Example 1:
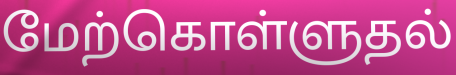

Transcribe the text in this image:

மேற்கொள்ளுதல்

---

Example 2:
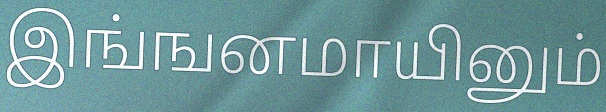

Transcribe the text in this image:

இங்ஙனமாயினும்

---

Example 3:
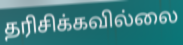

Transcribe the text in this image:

தரிசிக்கவில்லை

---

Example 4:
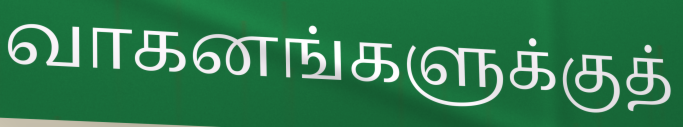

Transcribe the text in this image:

வாகனங்களுக்குத்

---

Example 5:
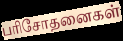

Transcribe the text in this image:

பரிசோதனைகள்